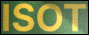
ISOT